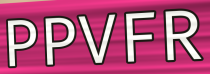
PPVFR